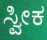
ಸ್ವೀಕ